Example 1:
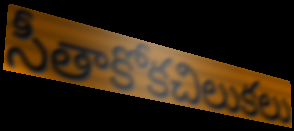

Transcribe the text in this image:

సీతాకోకచిలుకలు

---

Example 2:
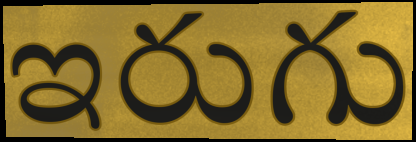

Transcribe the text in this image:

ఇరుగు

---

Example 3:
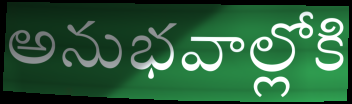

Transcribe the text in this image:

అనుభవాల్లోకి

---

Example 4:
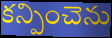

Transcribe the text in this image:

కన్పించెను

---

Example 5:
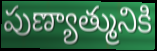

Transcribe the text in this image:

పుణ్యాత్మునికి